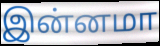
இன்னமா